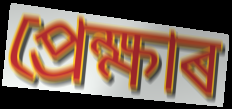
প্ৰেক্ষাৰ